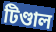
টিণ্ডাল